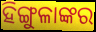
ହିଙ୍ଗୁଳାଙ୍କର